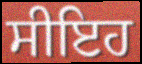
ਸੀਇਹ